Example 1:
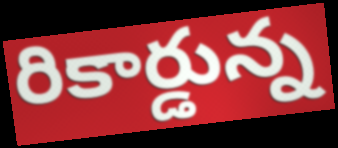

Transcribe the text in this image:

రికార్డున్న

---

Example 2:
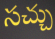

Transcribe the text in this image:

సచ్చు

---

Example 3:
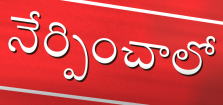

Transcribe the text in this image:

నేర్పించాలో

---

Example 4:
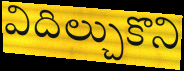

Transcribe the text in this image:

విదిల్చుకొని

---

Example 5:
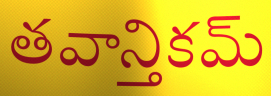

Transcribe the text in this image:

తవాన్తికమ్